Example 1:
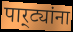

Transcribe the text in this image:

पार्ट्यांना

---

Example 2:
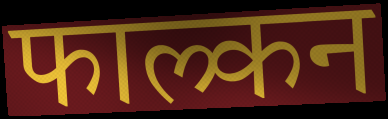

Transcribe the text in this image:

फाल्कन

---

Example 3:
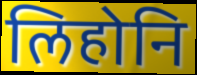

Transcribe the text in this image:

लिहोनि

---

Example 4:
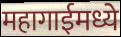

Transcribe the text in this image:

महागाईमध्ये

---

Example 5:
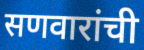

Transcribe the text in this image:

सणवारांची